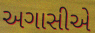
અગાસીએ